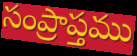
సంప్రాప్తము